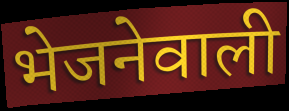
भेजनेवाली